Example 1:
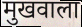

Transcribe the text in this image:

मुखवाला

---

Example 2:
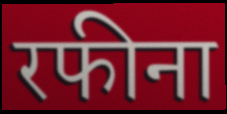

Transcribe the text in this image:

रफीना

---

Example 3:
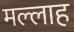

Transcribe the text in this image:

मल्‍लाह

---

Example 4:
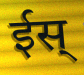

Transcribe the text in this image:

ईस्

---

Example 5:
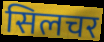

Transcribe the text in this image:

सिलचर